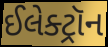
ઈલેક્ટ્રૉન